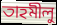
তাহমীলু